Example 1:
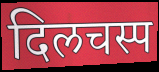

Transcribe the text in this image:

दिलचस्प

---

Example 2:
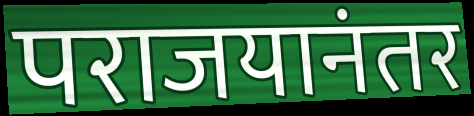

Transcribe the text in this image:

पराजयानंतर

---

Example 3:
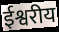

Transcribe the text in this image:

ईश्वरीय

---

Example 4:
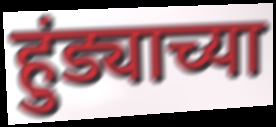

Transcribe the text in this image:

हुंड्याच्या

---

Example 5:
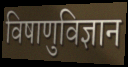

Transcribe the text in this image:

विषाणुविज्ञान